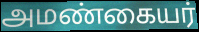
அமண்கையர்